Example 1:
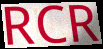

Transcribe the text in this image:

RCR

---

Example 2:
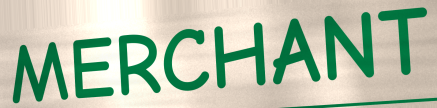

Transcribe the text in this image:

MERCHANT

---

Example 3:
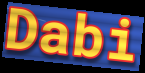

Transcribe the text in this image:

Dabi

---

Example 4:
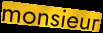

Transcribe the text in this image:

monsieur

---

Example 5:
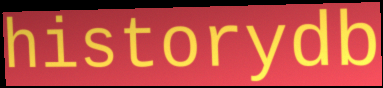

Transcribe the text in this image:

historydb